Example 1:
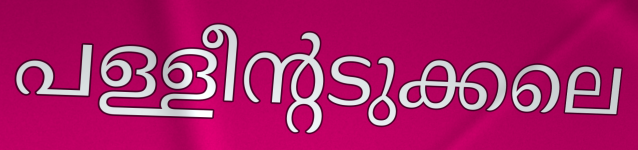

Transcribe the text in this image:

പള്ളീന്റടുക്കലെ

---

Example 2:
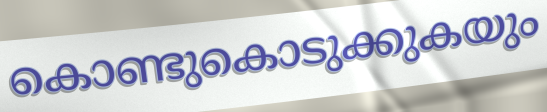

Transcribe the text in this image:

കൊണ്ടുകൊടുക്കുകയും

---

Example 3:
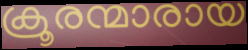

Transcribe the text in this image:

ക്രൂരന്മാരായ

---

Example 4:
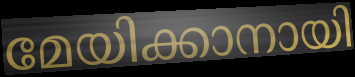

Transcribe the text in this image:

മേയിക്കാനായി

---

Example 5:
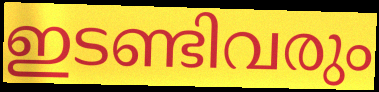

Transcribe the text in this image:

ഇടണ്ടിവരും